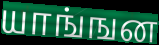
யாங்ஙன